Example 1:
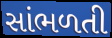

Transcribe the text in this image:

સાંભળતી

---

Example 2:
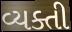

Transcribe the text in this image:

વ્યક્તી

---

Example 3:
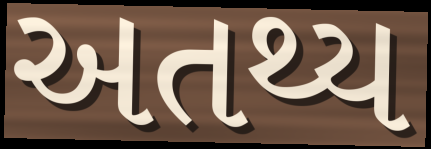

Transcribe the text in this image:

અતથ્ય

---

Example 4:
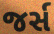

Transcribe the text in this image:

જર્સ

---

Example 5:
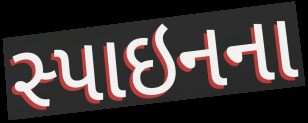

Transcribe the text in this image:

સ્પાઇનના